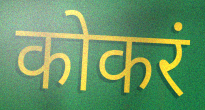
कोकरं